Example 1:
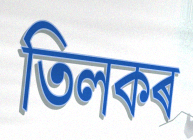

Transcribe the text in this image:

তিলকৰ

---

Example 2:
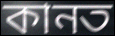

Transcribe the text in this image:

কানত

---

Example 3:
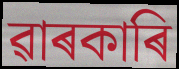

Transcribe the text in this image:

ৱাৰকাৰি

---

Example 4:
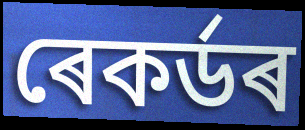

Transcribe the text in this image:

ৰেকৰ্ডৰ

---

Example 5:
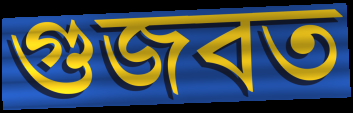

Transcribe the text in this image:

গুজবত